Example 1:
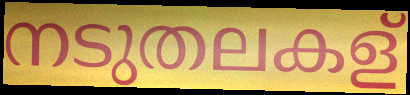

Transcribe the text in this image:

നടുതലകള്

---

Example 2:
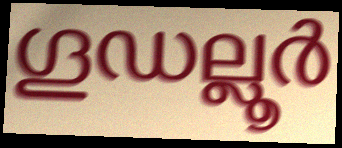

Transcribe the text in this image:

ഗൂഡല്ലൂർ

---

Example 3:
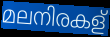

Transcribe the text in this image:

മലനിരകള്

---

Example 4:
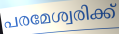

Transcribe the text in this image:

പരമേശ്വരിക്ക്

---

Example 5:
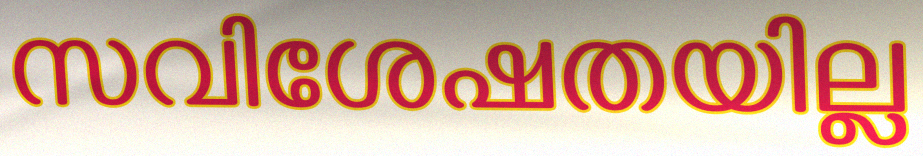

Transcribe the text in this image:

സവിശേഷതയില്ല